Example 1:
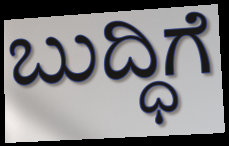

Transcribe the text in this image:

ಬುದ್ಧಿಗೆ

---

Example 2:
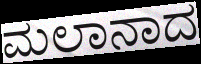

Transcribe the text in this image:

ಮಲಾನಾದ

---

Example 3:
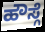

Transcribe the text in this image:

ಹೌಸ್ಗೆ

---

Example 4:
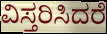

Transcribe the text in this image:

ವಿಸ್ತರಿಸಿದರೆ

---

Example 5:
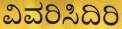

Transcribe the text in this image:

ವಿವರಿಸಿದಿರಿ